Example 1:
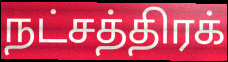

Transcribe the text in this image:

நட்சத்திரக்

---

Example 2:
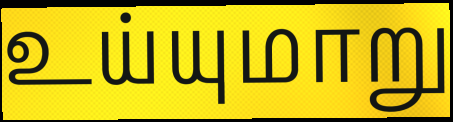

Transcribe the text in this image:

உய்யுமாறு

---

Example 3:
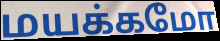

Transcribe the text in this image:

மயக்கமோ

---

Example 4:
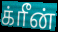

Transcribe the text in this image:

க்ரீன்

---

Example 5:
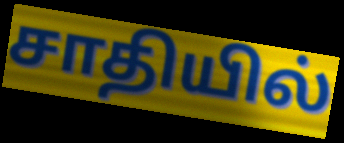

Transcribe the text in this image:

சாதியில்